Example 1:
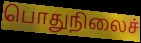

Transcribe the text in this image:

பொதுநிலைச்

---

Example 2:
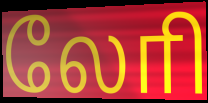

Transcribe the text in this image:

லேரி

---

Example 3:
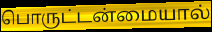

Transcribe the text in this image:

பொருட்டன்மையால்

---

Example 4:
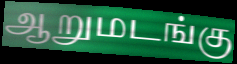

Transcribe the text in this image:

ஆறுமடங்கு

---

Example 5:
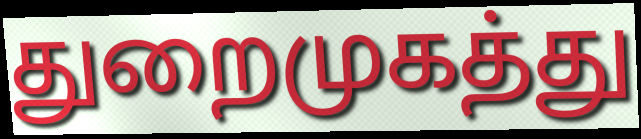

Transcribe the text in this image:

துறைமுகத்து